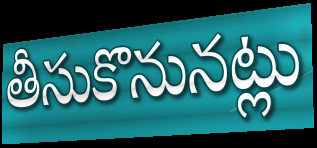
తీసుకొనునట్లు